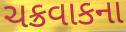
ચક્રવાકના